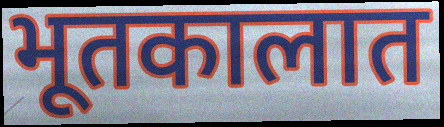
भूतकालात